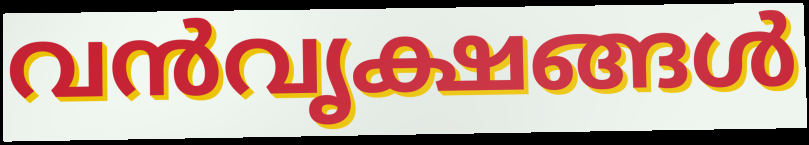
വൻവൃക്ഷങ്ങൾ